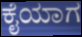
ಕೈಯಾಗ